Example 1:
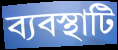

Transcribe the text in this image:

ব্যবস্থাটি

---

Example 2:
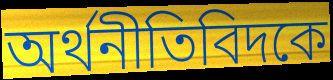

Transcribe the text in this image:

অর্থনীতিবিদকে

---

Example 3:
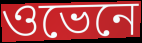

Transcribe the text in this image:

ওভেনে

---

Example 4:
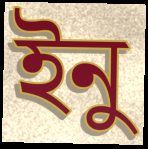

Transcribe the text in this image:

ইনু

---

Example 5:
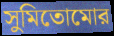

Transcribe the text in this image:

সুমিতোমোর